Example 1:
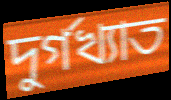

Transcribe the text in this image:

দুর্গখ্যাত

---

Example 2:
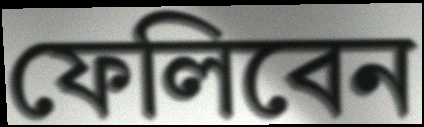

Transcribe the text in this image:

ফেলিবেন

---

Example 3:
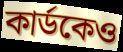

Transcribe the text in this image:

কার্ডকেও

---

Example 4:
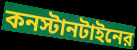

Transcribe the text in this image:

কনস্টানটাইনের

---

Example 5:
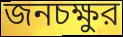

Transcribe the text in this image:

জনচক্ষুর